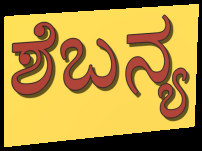
ಶೆಬನ್ಯ